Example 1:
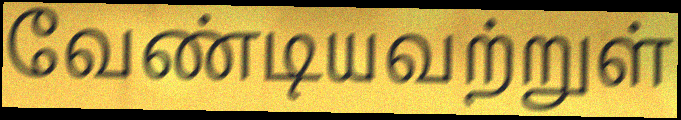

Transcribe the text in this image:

வேண்டியவற்றுள்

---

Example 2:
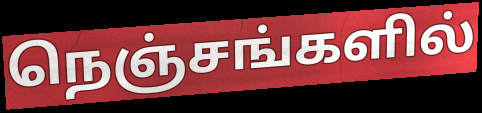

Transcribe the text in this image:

நெஞ்சங்களில்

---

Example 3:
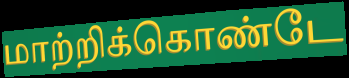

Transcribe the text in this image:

மாற்றிக்கொண்டே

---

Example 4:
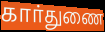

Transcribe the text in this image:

கார்துணை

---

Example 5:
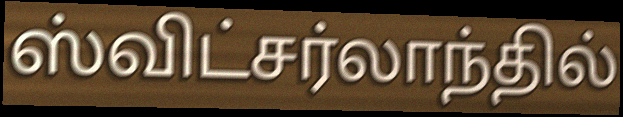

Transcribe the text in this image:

ஸ்விட்சர்லாந்தில்